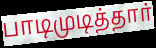
பாடிமுடித்தார்